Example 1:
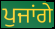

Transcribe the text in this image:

ਪੁਜਾਂਗੇ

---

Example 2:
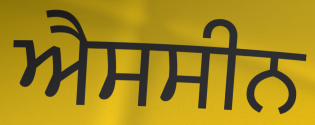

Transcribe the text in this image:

ਐਸਸੀਨ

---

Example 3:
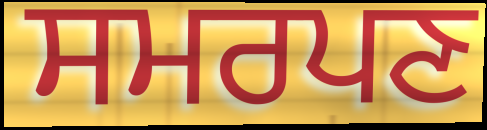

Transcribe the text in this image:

ਸਮਰਪਣ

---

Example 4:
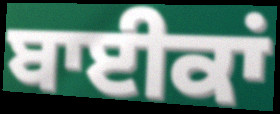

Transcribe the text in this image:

ਬਾਈਕਾਂ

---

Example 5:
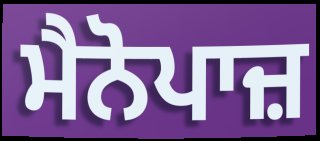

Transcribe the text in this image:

ਮੈਨੋਪਾਜ਼